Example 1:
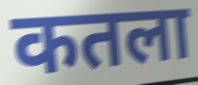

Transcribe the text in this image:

कतला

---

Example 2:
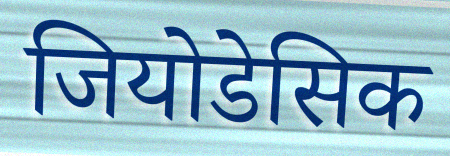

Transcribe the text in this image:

जियोडेसिक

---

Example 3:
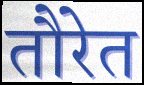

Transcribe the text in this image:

तौरेत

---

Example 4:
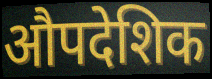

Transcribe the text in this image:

औपदेशिक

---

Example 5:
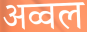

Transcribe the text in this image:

अव्वल